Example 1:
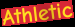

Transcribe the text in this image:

Athletic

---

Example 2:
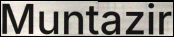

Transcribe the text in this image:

Muntazir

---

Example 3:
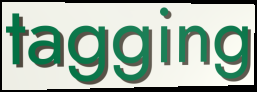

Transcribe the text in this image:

tagging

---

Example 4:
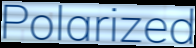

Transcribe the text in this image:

Polarized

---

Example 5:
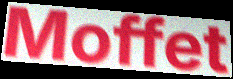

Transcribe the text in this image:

Moffet